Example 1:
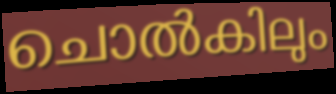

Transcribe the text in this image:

ചൊൽകിലും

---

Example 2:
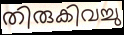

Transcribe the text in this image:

തിരുകിവച്ചു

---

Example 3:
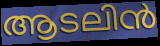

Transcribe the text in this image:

ആടലിൻ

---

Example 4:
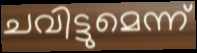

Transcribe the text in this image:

ചവിട്ടുമെന്ന്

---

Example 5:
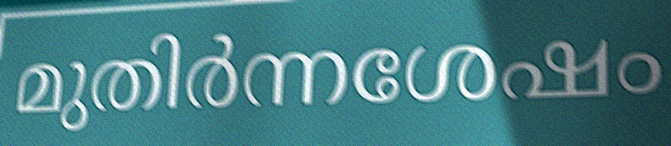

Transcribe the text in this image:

മുതിർന്നശേഷം